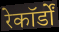
रेकॉर्डों